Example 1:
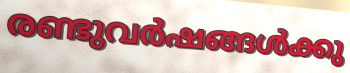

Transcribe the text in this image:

രണ്ടുവർഷങ്ങൾക്കു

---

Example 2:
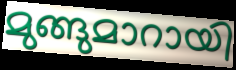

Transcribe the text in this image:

മുങ്ങുമാറായി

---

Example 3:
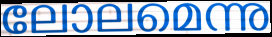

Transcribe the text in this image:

ലോലമെന്നു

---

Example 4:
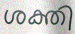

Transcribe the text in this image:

ശക്തി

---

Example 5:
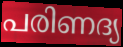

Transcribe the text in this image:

പരിണദ്യ